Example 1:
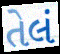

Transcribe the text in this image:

તેલં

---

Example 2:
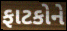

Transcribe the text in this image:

ફાટકોને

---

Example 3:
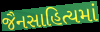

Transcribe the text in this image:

જૈનસાહિત્યમાં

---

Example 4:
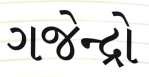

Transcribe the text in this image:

ગજેન્દ્રો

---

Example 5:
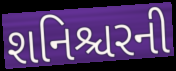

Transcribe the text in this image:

શનિશ્ચરની